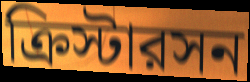
ক্রিস্টারসন